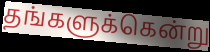
தங்களுக்கென்று